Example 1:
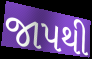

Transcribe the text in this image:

જાપથી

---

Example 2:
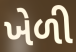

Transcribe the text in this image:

ખેળી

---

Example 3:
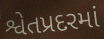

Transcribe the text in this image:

શ્વેતપ્રદરમાં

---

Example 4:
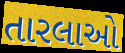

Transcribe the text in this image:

તારલાઓ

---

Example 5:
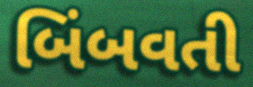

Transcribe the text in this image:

બિંબવતી